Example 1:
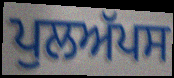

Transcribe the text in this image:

ਪੁਲਅੱਪਸ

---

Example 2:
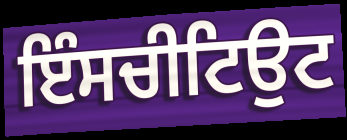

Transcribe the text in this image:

ਇੰਸਚੀਟਿਉਟ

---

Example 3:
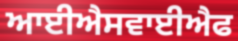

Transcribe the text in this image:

ਆਈਐਸਵਾਈਐਫ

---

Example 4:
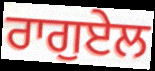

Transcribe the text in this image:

ਰਾਗੁਏਲ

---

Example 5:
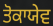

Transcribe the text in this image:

ਤੋਕਾਯੇਵ